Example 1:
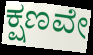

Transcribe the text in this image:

ಕ್ಷಣವೇ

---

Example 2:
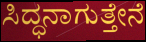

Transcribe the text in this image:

ಸಿದ್ಧನಾಗುತ್ತೇನೆ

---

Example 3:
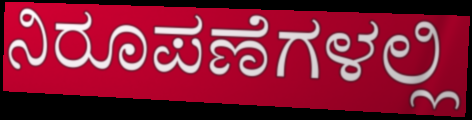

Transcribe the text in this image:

ನಿರೂಪಣೆಗಳಲ್ಲಿ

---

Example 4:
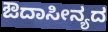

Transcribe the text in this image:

ಔದಾಸೀನ್ಯದ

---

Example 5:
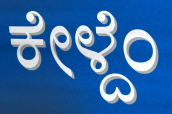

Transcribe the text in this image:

ಕೇಳ್ದೆಂ